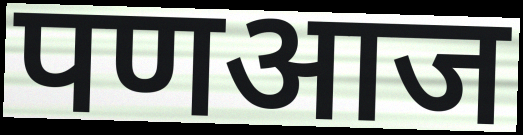
पणआज